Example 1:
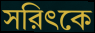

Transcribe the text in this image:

সরিৎকে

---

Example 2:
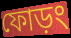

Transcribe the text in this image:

ফোড়ং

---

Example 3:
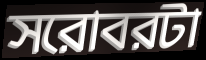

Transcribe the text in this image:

সরোবরটা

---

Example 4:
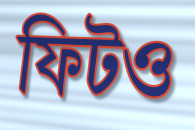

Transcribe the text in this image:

ফিটও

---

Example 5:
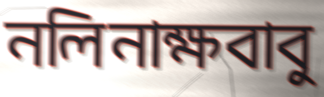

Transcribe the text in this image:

নলিনাক্ষবাবু